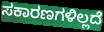
ಸಕಾರಣಗಳಿಲ್ಲದೆ